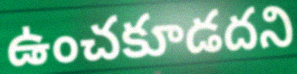
ఉంచకూడదని